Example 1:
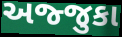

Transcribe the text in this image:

અજ્જુકા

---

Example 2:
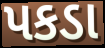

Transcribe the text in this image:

પકડા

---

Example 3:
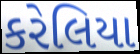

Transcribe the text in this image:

કરેલિયા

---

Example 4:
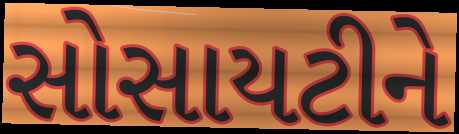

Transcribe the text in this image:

સોસાયટીને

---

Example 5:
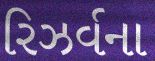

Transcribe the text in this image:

રિઝર્વના